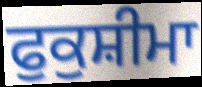
ਫੁਕੁਸ਼ੀਮਾ